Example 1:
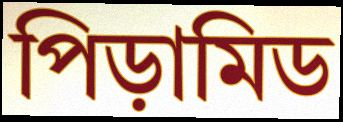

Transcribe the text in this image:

পিড়ামিড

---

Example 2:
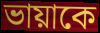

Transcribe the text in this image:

ভায়াকে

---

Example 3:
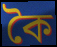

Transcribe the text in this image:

কৈ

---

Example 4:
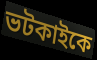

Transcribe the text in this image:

ভটকাইকে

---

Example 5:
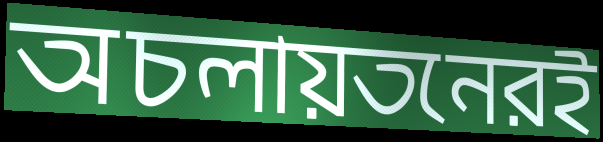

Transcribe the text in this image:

অচলায়তনেরই